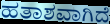
ಹತಾಶವಾಗಿದೆ